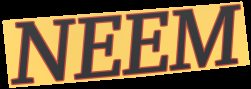
NEEM